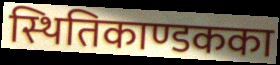
स्थितिकाण्डकका